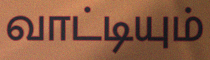
வாட்டியும்